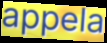
appela